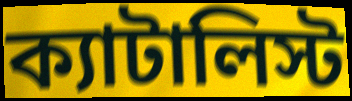
ক্যাটালিস্ট